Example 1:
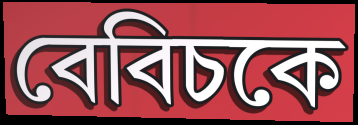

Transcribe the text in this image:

বেবিচকে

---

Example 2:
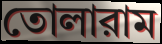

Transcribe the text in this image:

তোলারাম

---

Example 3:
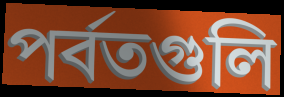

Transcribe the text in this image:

পর্বতগুলি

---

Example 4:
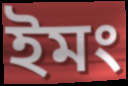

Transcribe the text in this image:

ইমং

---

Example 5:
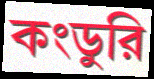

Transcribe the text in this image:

কংডুরি